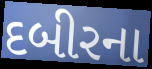
દબીરના